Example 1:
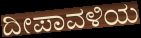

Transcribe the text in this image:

ದೀಪಾವಳಿಯ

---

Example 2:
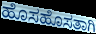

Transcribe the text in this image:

ಹೊಸಹೊಸತಾಗಿ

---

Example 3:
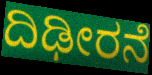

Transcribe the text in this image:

ದಿಢೀರನೆ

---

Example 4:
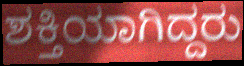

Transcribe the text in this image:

ಶಕ್ತಿಯಾಗಿದ್ದರು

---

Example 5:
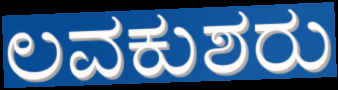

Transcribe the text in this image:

ಲವಕುಶರು